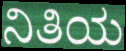
ನಿತಿಯ